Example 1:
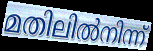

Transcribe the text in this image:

മതിലിൽനിന്ന്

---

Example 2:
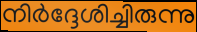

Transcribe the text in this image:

നിർദ്ദേശിച്ചിരുന്നു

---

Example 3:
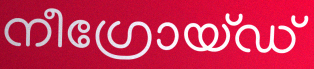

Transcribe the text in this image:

നീഗ്രോയ്ഡ്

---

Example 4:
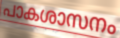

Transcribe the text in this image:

പാകശാസനം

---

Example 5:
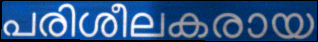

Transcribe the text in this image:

പരിശീലകരായ